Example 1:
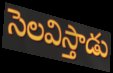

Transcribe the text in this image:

సెలవిస్తాడు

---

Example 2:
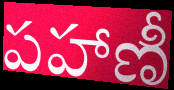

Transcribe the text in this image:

పహాణీ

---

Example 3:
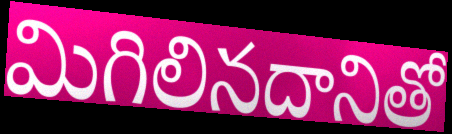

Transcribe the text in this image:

మిగిలినదానితో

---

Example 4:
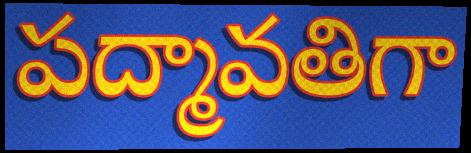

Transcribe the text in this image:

పద్మావతిగా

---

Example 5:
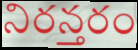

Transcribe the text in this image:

నిరన్తరం